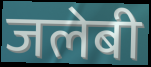
जलेबी